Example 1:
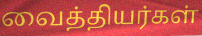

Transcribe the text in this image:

வைத்தியர்கள்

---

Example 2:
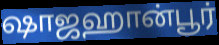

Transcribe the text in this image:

ஷாஜஹான்பூர்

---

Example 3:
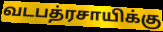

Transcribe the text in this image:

வடபத்ரசாயிக்கு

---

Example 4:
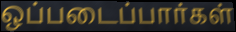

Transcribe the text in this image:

ஒப்படைப்பார்கள்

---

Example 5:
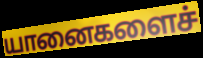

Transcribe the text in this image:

யானைகளைச்